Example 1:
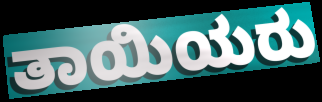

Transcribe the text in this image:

ತಾಯಿಯರು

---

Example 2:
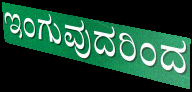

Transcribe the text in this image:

ಇಂಗುವುದರಿಂದ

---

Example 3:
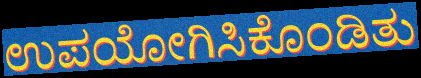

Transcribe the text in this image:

ಉಪಯೋಗಿಸಿಕೊಂಡಿತು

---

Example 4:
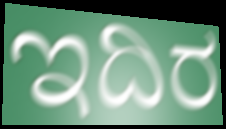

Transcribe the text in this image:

ಇದಿರ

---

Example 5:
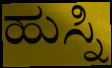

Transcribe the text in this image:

ಹುಸ್ನಿ